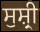
ਸੁਸ਼੍ਰੀ